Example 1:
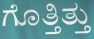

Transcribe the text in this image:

ಗೊತ್ತಿತ್ತು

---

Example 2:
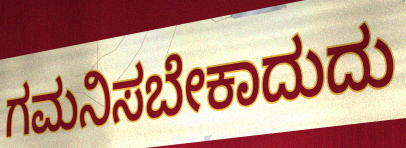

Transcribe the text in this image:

ಗಮನಿಸಬೇಕಾದುದು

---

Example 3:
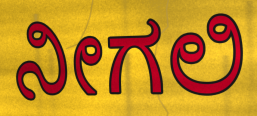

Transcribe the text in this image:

ನೀಗಲಿ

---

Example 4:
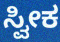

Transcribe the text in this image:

ಸ್ವೀಕ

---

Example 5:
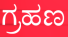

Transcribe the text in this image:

ಗ್ರಹಣ